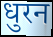
धुरन